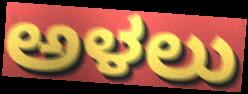
ಅಳಲು